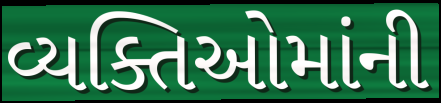
વ્યક્તિઓમાંની